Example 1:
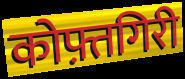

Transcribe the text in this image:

कोफ़्तगिरी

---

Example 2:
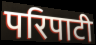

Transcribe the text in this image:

परिपाटी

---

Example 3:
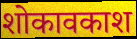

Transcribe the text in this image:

शोकावकाश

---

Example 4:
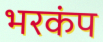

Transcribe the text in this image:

भरकंप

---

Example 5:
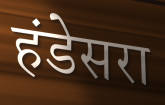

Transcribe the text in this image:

हंडेसरा